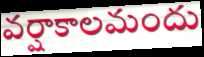
వర్షాకాలమందు